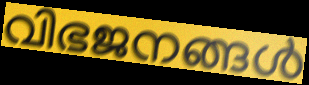
വിഭജനങ്ങൾ